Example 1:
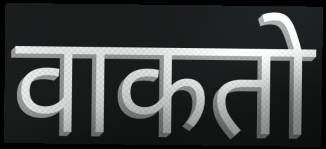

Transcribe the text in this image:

वाकतो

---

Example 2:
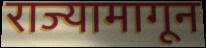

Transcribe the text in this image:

राज्यामागून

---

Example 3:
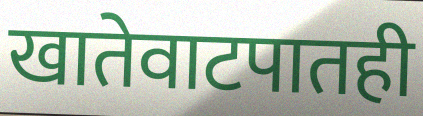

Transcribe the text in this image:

खातेवाटपातही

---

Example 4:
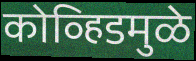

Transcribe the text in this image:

कोव्हिडमुळे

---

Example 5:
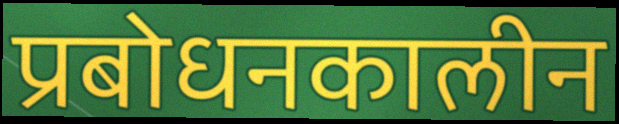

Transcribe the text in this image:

प्रबोधनकालीन